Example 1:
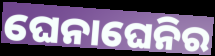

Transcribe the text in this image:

ଘେନାଘେନିର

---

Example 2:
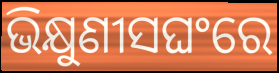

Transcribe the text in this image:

ଭିକ୍ଷୁଣୀସଘଂରେ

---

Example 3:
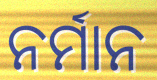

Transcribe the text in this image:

ନର୍ମାନ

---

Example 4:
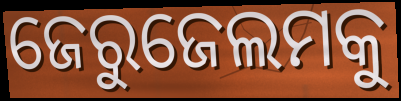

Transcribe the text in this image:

ଜେରୁଜେଲମକୁ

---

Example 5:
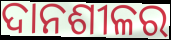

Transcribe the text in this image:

ଦାନଶୀଳର